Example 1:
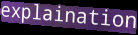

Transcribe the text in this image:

explaination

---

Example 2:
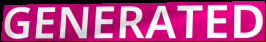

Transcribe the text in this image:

GENERATED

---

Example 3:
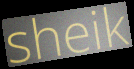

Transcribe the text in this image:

sheik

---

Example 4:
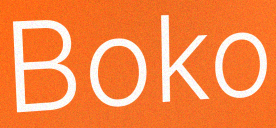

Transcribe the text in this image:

Boko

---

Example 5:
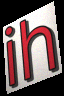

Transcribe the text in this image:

ih